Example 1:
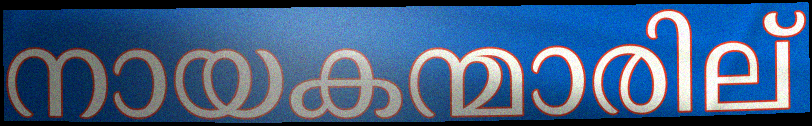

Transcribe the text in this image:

നായകന്മാരില്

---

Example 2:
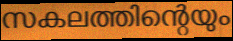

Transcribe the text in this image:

സകലത്തിന്റെയും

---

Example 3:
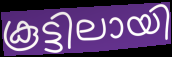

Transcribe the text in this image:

കൂട്ടിലായി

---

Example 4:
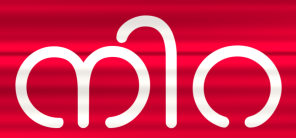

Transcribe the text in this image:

നിറ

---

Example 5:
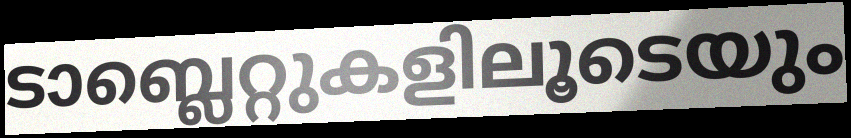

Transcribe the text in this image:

ടാബ്ലെറ്റുകളിലൂടെയും